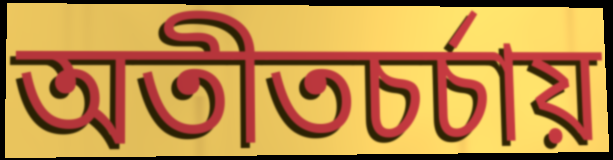
অতীতচর্চায়